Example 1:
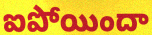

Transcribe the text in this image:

ఐపోయిందా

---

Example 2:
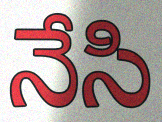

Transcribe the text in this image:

నేసి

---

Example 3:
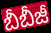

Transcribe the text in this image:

బీబీజీ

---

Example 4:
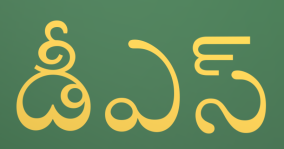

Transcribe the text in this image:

డీఎస్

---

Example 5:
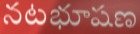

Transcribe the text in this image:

నటభూషణ